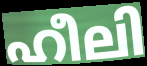
ഹീലി